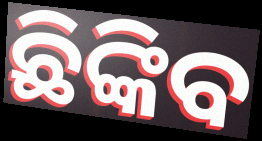
ଛିଙ୍କିବ